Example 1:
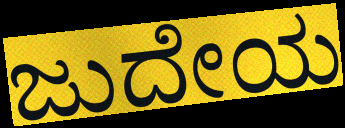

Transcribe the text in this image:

ಜುದೇಯ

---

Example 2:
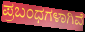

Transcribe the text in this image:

ಪ್ರಬಂಧಗಳಾಗಿವೆ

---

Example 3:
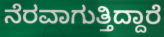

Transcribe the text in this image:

ನೆರವಾಗುತ್ತಿದ್ದಾರೆ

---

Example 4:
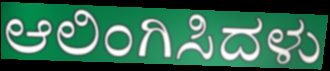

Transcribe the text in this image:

ಆಲಿಂಗಿಸಿದಳು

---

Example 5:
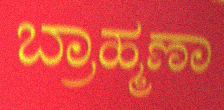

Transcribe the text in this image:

ಬ್ರಾಹ್ಮಣಾ